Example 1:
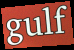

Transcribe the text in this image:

gulf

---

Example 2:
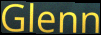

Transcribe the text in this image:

Glenn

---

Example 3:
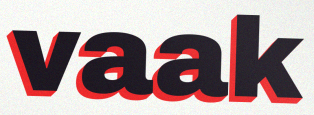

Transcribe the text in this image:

vaak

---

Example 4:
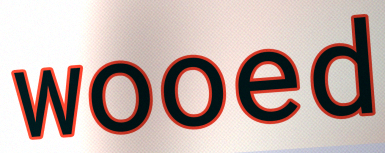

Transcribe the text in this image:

wooed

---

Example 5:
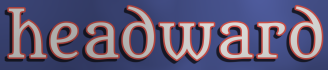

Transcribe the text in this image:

headward